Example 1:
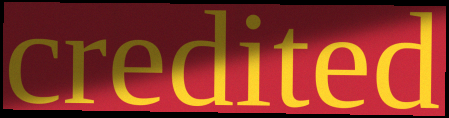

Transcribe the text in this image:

credited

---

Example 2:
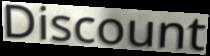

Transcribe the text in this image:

Discount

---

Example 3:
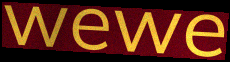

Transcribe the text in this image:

wewe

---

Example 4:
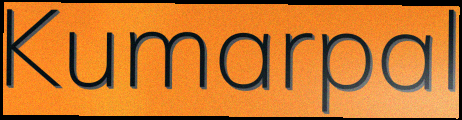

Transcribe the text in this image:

Kumarpal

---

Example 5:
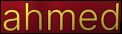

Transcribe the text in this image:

ahmed